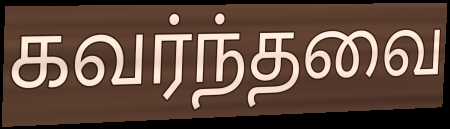
கவர்ந்தவை